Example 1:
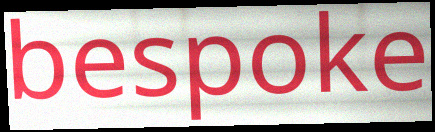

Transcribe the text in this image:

bespoke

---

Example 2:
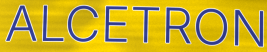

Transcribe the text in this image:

ALCETRON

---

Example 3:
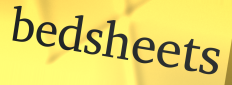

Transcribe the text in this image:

bedsheets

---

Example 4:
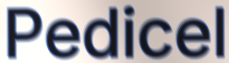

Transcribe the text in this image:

Pedicel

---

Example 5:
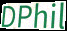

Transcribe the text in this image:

DPhil